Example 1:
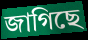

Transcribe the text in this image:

জাগিছে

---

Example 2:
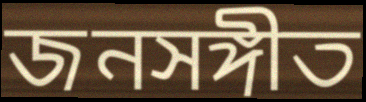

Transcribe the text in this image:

জনসঙ্গীত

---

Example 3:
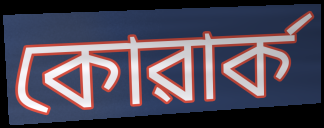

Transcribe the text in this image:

কোৱাৰ্ক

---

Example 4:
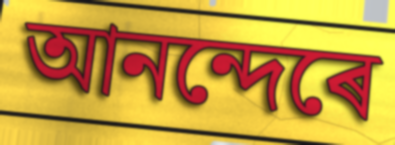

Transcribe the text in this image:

আনন্দেৰে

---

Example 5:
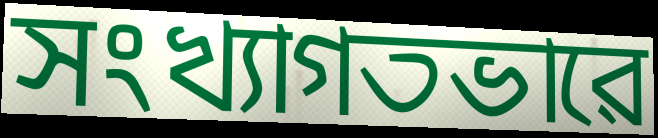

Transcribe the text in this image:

সংখ্যাগতভাৱে